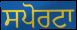
ਸਪੋਰਟਾ